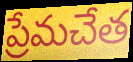
ప్రేమచేత